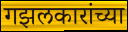
गझलकारांच्या